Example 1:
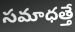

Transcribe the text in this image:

సమాధత్తే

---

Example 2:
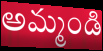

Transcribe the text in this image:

అమ్మండి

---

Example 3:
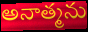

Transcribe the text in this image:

అనాత్మను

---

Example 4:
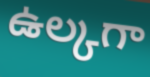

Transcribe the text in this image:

ఉల్కగా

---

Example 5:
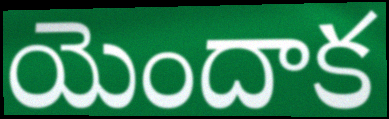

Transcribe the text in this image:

యెందాక